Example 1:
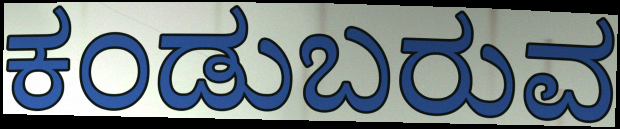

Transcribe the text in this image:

ಕಂಡುಬರುವ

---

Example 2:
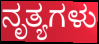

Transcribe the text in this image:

ನೃತ್ಯಗಳು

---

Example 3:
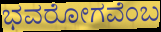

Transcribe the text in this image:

ಭವರೋಗವೆಂಬ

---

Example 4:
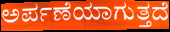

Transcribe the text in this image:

ಅರ್ಪಣೆಯಾಗುತ್ತದೆ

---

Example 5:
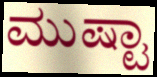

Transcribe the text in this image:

ಮುಷ್ಟಾ